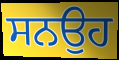
ਸਨਉਹ